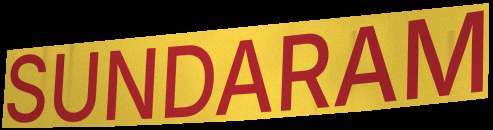
SUNDARAM